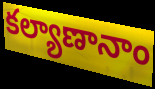
కల్యాణానాం